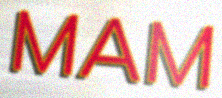
MAM